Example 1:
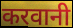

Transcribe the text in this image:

करवानी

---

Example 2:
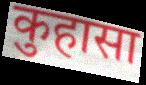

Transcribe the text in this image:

कुहासा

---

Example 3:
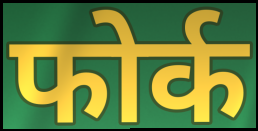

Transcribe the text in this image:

फोर्क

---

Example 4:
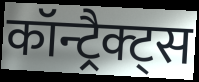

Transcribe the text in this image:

कॉन्‍ट्रैक्‍ट्स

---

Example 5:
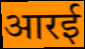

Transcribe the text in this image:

आरई